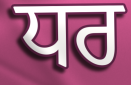
ਧਰ